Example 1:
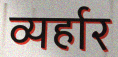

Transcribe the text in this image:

व्यर्हार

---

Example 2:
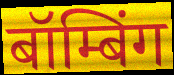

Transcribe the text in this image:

बॉम्बिंग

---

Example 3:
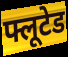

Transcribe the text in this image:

फ्लूटेड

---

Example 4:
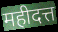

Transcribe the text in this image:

महीदत्त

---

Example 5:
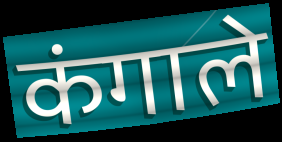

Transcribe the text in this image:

कंगाले